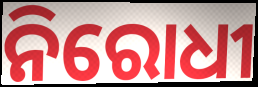
ନିରୋଧୀ